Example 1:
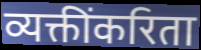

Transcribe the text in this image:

व्यक्तींकरिता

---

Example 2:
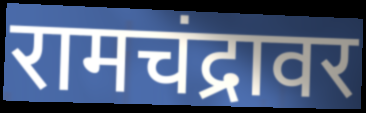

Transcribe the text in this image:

रामचंद्रावर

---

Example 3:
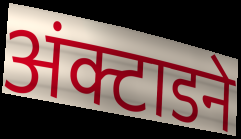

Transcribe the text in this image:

अंक्टाडने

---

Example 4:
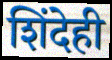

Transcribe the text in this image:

शिंदेही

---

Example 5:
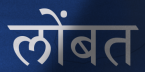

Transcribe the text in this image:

लोंबत